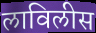
लाविलीस